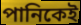
পানিকেই